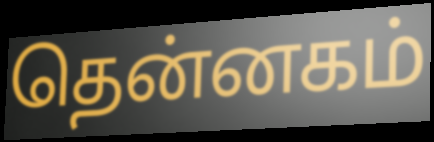
தென்னகம்